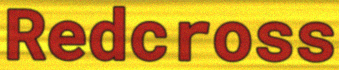
Redcross